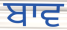
ਬਾਵ